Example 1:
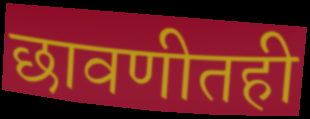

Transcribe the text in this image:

छावणीतही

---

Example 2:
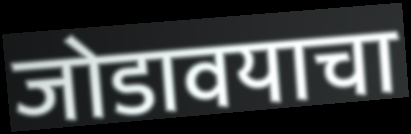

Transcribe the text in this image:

जोडावयाचा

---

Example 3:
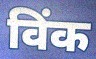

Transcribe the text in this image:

विंक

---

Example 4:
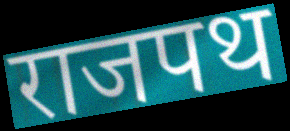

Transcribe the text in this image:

राजपथ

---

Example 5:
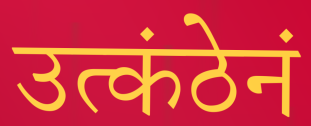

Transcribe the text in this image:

उत्कंठेनं